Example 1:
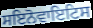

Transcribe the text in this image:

ਸਇਨੋਵਾਇਟਿਸ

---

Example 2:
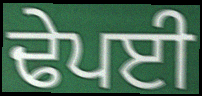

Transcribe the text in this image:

ਢੇਪਈ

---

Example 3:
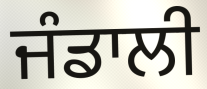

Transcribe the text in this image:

ਜੰਡਾਲੀ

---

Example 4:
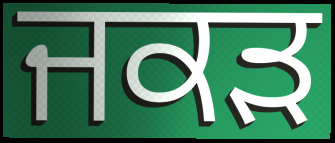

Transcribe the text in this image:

ਜਕੜ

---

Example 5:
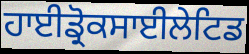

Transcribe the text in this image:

ਹਾਈਡ੍ਰੋਕਸਾਈਲੇਟਿਡ